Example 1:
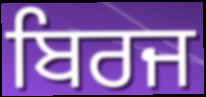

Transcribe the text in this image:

ਬਿਰਜ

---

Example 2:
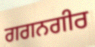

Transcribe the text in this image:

ਗਗਨਗੀਰ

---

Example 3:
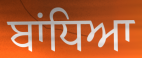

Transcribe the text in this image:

ਬਾਂਧਿਆ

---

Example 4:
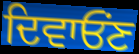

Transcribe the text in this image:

ਦਿਵਾਓੰਣ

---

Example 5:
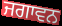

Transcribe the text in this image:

ਜਗਾਵਨ